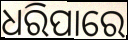
ଧରିପାରେ